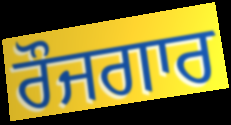
ਰੌਜਗਾਰ